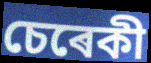
চেৰেকী